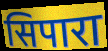
सिपारा